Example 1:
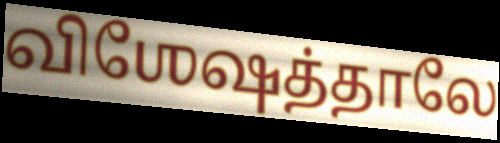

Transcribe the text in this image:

விஶேஷத்தாலே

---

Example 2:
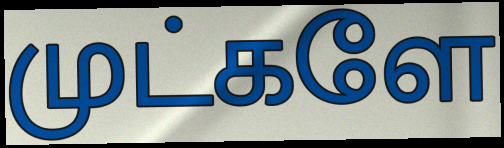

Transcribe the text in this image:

முட்களே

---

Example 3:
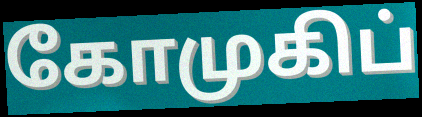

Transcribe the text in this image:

கோமுகிப்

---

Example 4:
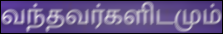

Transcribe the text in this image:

வந்தவர்களிடமும்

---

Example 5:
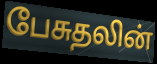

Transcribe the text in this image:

பேசுதலின்